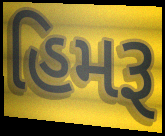
હિમરૂ